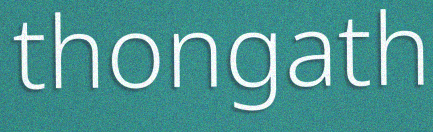
thongath